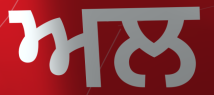
ਅਲ